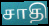
சாதி